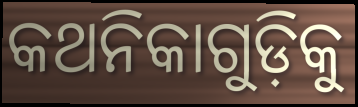
କଥନିକାଗୁଡ଼ିକୁ